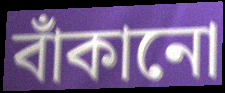
বাঁকানো